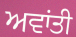
ਅਵਾਂਤੀ